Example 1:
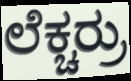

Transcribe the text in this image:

ಲೆಕ್ಚರ್ರು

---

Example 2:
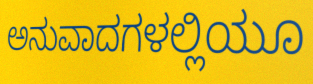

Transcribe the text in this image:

ಅನುವಾದಗಳಲ್ಲಿಯೂ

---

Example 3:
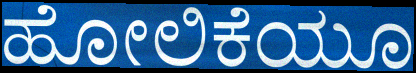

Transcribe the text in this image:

ಹೋಲಿಕೆಯೂ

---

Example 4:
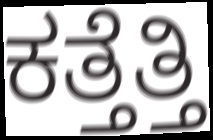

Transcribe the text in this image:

ಕತ್ತೆತ್ತಿ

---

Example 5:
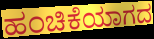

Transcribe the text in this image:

ಹಂಚಿಕೆಯಾಗದ